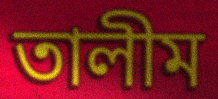
তালীম